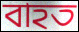
বাহত